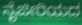
ನೈಜೀರಿಯದ